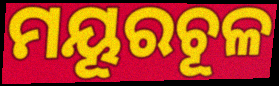
ମୟୂରଚୂଳ